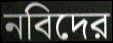
নবিদের